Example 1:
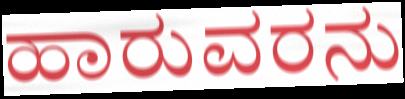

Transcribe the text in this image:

ಹಾರುವರನು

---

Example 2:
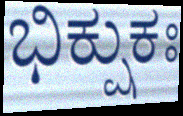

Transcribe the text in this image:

ಭಿಕ್ಷುಕಃ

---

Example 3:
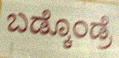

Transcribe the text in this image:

ಬಡ್ಕೊಂಡ್ರೆ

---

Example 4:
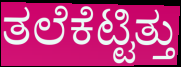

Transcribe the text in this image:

ತಲೆಕೆಟ್ಟಿತ್ತು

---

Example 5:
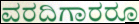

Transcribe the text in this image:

ವರದಿಗಾರರೂ